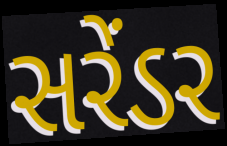
સરેંડર